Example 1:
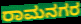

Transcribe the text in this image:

ರಾಮನಗರ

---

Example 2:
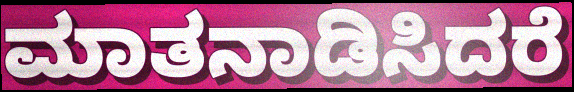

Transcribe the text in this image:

ಮಾತನಾಡಿಸಿದರೆ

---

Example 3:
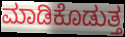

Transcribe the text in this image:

ಮಾಡಿಕೊಡುತ್ತ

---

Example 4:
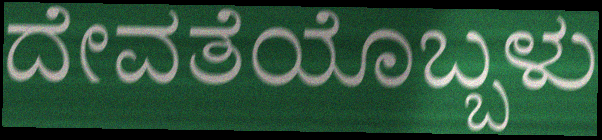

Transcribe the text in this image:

ದೇವತೆಯೊಬ್ಬಳು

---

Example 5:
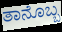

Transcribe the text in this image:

ತಾನೊಬ್ಬ